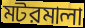
মটরমালা